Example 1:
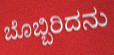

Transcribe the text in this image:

ಬೊಬ್ಬಿರಿದನು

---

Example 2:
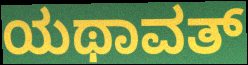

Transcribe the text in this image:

ಯಥಾವತ್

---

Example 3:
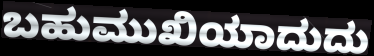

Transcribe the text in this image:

ಬಹುಮುಖಿಯಾದುದು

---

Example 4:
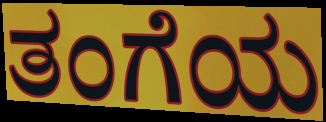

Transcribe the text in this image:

ತಂಗೆಯ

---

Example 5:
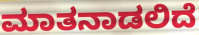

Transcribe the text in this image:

ಮಾತನಾಡಲಿದೆ